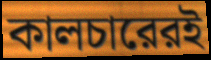
কালচারেরই